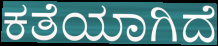
ಕತೆಯಾಗಿದೆ